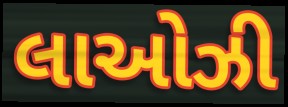
લાઓઝી